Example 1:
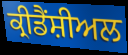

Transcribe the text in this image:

ਕ੍ਰੀਡੈਂਸ਼ੀਅਲ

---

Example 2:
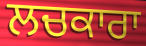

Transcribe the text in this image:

ਲਚਕਾਰਾ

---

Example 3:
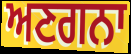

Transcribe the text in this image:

ਅਣਗਨਾ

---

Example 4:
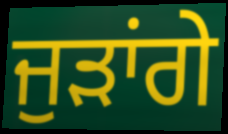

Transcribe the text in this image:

ਜੁੜਾਂਗੇ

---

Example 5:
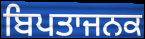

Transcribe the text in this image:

ਬਿਪਤਾਜਨਕ